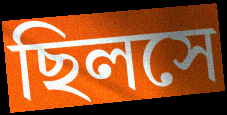
ছিলসে